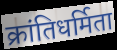
क्रांतिधर्मिता